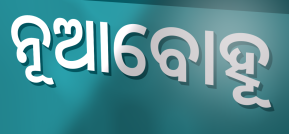
ନୂଆବୋହୂ